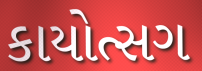
કાયોત્સગ